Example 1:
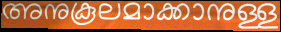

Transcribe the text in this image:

അനുകൂലമാക്കാനുള്ള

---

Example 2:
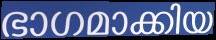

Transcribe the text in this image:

ഭാഗമാക്കിയ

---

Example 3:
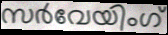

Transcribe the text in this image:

സർവേയിംഗ്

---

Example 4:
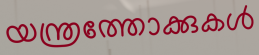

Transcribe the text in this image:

യന്ത്രത്തോക്കുകൾ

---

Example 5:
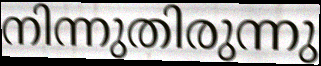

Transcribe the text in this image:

നിന്നുതിരുന്നു